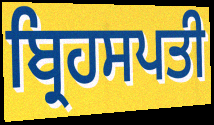
ਬ੍ਰਿਹਸਪਤੀ